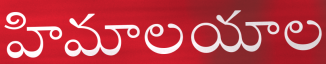
హిమాలయాల